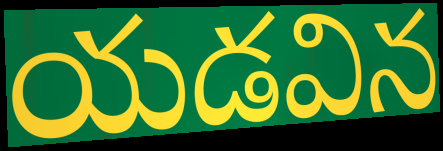
యడవిన